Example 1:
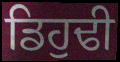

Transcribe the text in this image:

ਡਿਹੁਢੀ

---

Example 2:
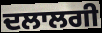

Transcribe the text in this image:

ਦਲਾਲਗੀ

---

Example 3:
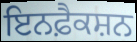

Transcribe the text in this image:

ਇਨਫ਼ੈਕਸ਼ਨ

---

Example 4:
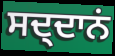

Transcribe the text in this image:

ਸਦ੍ਦਾਨਂ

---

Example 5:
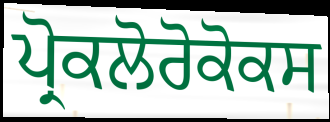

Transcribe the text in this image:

ਪ੍ਰੋਕਲੋਰੋਕੋਕਸ